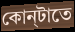
কোন্‌টাতে